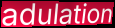
adulation